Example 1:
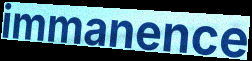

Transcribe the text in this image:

immanence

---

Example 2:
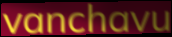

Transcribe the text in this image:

vanchavu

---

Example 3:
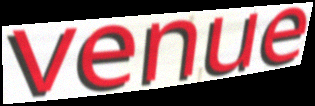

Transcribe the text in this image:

venue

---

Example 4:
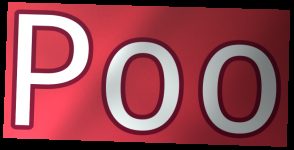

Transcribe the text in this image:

Poo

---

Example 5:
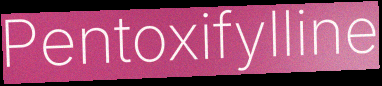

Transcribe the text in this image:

Pentoxifylline